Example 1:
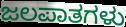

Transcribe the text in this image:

ಜಲಪಾತಗಳು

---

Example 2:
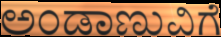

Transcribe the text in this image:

ಅಂಡಾಣುವಿಗೆ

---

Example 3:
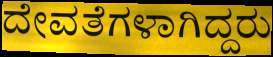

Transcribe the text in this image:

ದೇವತೆಗಳಾಗಿದ್ದರು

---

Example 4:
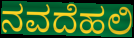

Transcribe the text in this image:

ನವದೆಹಲಿ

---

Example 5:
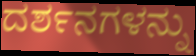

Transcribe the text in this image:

ದರ್ಶನಗಳನ್ನು